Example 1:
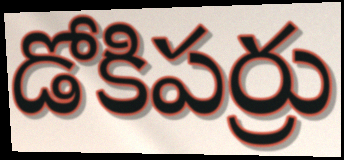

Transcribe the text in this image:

డోకిపర్రు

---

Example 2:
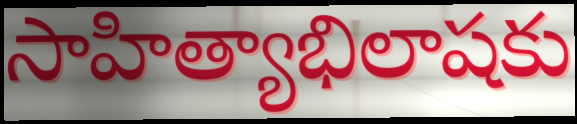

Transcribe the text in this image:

సాహిత్యాభిలాషకు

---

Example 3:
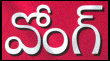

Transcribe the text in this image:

వోంగ్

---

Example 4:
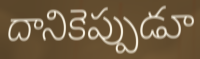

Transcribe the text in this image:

దానికెప్పుడూ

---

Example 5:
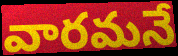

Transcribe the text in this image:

వారమనే